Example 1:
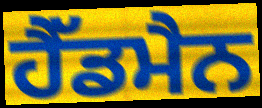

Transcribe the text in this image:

ਹੈੱਡਮੈਨ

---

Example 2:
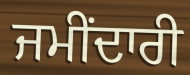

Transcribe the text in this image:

ਜਮੀਂਦਾਰੀ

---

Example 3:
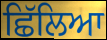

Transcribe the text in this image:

ਛਿੱਲਿਆ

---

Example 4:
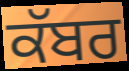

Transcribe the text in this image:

ਕੱਬਰ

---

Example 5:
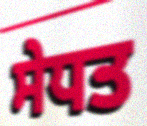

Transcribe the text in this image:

ਸੇਧਤ